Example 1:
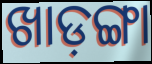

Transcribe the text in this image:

ଖାଡ଼ଙ୍ଗା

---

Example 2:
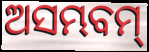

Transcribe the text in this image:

ଅସମ୍ଭବମ୍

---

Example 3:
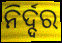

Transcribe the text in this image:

ନିର୍ଦ୍ଦର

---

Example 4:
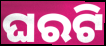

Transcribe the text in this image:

ଘରଟି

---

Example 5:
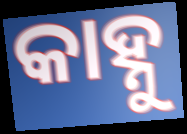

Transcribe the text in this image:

କାହ୍ନୁ